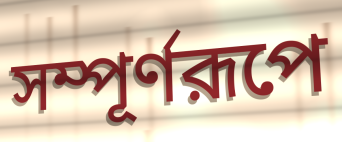
সম্পূর্ণরূপে